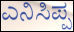
ಎನಿಸಿಪ್ಪ